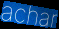
achar